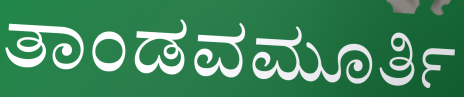
ತಾಂಡವಮೂರ್ತಿ